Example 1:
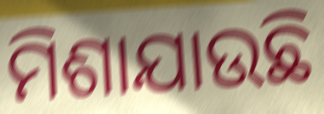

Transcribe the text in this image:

ମିଶାଯାଉଛି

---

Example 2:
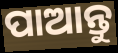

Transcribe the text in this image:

ପାଆନ୍ତୁ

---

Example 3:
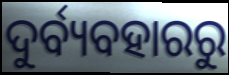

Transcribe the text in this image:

ଦୁର୍ବ୍ୟବହାରରୁ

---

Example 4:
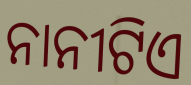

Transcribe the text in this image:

ନାନୀଟିଏ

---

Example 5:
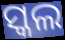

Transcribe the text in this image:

ସ୍କଲ